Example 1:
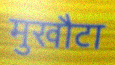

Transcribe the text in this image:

मुखौटा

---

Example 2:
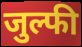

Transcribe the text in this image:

जुल्फी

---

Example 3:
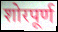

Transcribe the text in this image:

शोरपूर्ण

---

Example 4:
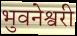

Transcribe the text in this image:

भुवनेश्वरी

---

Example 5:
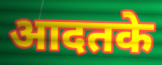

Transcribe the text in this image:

आदतके